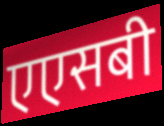
एएसबी